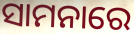
ସାମନାରେ